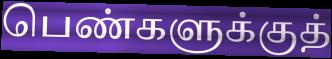
பெண்களுக்குத்